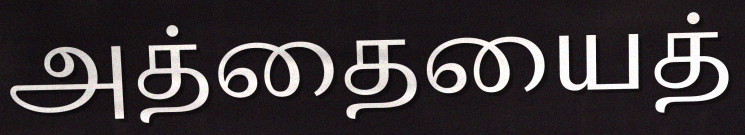
அத்தையைத்